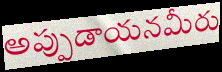
అప్పుడాయనమీరు